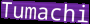
Tumachi